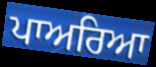
ਪਾਅਰਿਆ